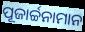
ପୂଜାର୍ଚ୍ଚନାମାନ